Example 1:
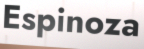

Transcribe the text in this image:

Espinoza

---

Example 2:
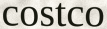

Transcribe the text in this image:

costco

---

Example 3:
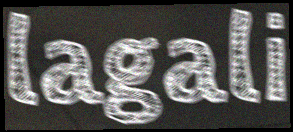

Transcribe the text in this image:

lagali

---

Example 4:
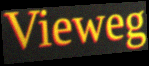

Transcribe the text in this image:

Vieweg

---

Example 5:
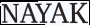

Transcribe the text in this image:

NAYAK